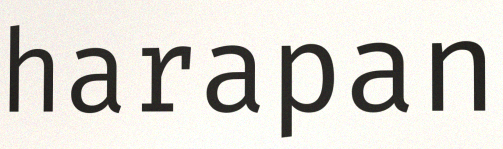
harapan